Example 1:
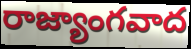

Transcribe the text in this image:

రాజ్యాంగవాద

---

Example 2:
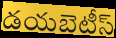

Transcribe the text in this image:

డయబెటీస్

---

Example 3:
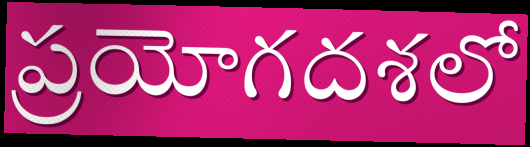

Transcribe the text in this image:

ప్రయోగదశలో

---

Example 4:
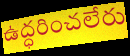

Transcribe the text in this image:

ఉద్ధరించలేరు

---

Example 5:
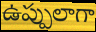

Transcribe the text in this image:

ఉప్పులాగా